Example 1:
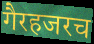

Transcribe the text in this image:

गैरहजरच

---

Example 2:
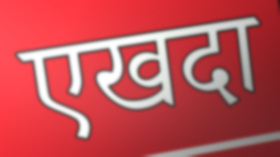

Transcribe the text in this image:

एखदा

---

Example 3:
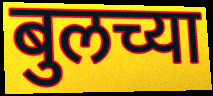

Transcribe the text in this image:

बुलच्या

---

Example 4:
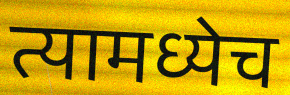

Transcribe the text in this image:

त्यामध्येच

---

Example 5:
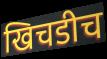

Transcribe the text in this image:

खिचडीच